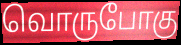
வொருபோகு